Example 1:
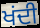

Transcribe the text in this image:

ਖਂਦੀ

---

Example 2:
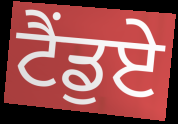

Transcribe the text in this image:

ਟੈਂਡੁਏ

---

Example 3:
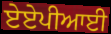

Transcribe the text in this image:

ਏਏਪੀਆਈ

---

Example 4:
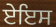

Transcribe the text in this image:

ਏਇਸ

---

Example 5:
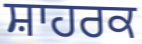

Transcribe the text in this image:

ਸ਼ਾਹਰਕ